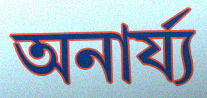
অনাৰ্য্য